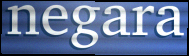
negara